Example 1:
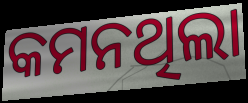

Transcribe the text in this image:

କମନଥିଲା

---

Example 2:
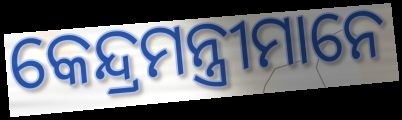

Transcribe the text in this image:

କେନ୍ଦ୍ରମନ୍ତ୍ରୀମାନେ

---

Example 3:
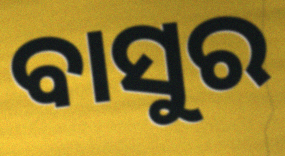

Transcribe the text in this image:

ବାସୁର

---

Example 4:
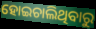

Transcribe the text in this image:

ହୋଇଚାଲିଥିବାରୁ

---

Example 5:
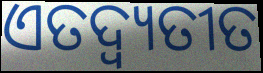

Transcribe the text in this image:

ଏତଦ୍ବ୍ୟତୀତ